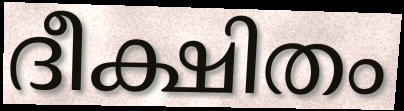
ദീക്ഷിതം